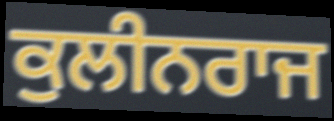
ਕੁਲੀਨਰਾਜ